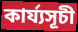
কাৰ্য্যসূচী